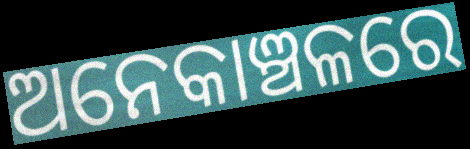
ଅନେକାଞ୍ଚଳରେ